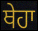
ਥੇਹਾ